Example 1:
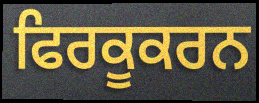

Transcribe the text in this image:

ਫਿਰਕੂਕਰਨ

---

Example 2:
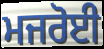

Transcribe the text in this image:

ਮਜਰੋਈ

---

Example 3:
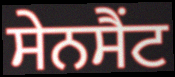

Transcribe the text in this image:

ਸੇਨਸੈਂਟ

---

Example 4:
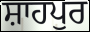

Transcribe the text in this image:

ਸ਼ਾਹਪੁਰ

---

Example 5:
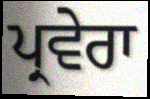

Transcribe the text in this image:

ਪ੍ਰਵੇਰਾ